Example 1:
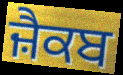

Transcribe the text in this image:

ਜ਼ੈਕਬ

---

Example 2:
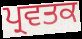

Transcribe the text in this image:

ਪ੍ਰਵਤਕ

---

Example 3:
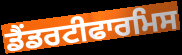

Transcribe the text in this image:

ਡੈਂਡਰਟੀਫਾਰਮਿਸ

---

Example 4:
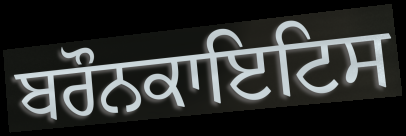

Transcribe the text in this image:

ਬਰੌਨਕਾਇਟਿਸ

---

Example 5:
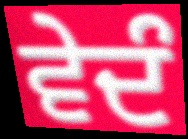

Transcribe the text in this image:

ਵੇਦੰ